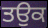
ਤਉਕ